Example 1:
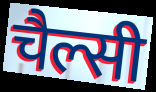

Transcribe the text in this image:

चैल्सी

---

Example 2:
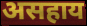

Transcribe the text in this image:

असहाय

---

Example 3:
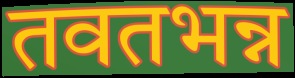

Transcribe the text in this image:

तवतभन्न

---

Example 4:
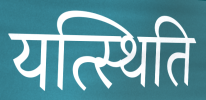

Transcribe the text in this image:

यत्स्थिति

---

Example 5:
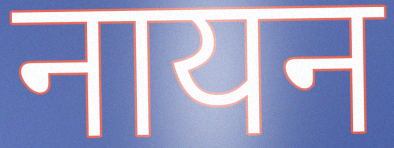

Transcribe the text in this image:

नायन